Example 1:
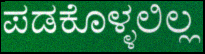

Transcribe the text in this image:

ಪಡಕೊಳ್ಳಲಿಲ್ಲ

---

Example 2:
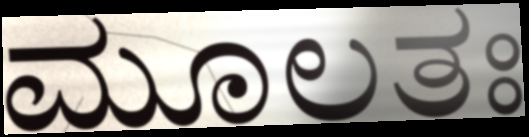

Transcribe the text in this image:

ಮೂಲತಃ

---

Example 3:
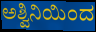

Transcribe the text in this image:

ಅಶ್ವಿನಿಯಿಂದ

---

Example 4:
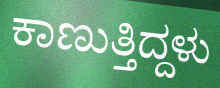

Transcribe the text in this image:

ಕಾಣುತ್ತಿದ್ದಳು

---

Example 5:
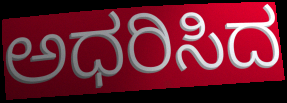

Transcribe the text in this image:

ಅಧರಿಸಿದ